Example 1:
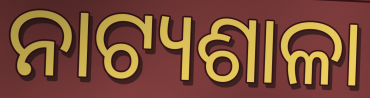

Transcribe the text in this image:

ନାଟ୍ୟଶାଳା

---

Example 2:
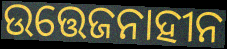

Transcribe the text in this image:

ଉତ୍ତେଜନାହୀନ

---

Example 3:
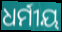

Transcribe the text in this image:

ଧର୍ମୀୟ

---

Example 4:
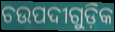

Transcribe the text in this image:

ଚଉପଦୀଗୁଡ଼ିକ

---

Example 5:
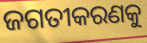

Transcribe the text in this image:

ଜଗତୀକରଣକୁ